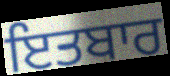
ਇਤਬਾਰ